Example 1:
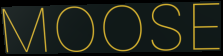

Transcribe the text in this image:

MOOSE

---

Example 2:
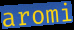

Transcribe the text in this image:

aromi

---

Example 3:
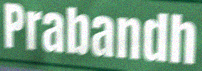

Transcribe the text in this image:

Prabandh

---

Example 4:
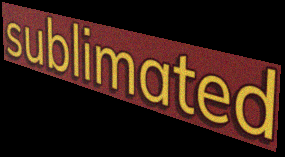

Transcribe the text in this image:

sublimated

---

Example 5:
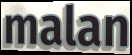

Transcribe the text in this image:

malan